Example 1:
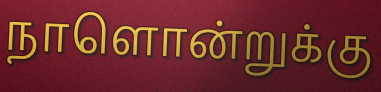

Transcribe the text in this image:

நாளொன்றுக்கு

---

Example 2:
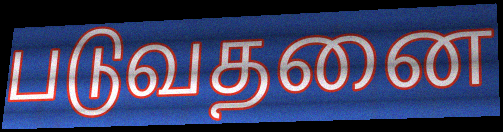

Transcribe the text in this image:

படுவதனை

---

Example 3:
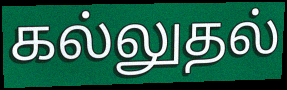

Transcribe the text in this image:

கல்லுதல்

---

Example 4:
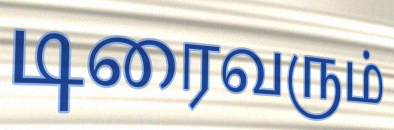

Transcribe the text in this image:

டிரைவரும்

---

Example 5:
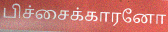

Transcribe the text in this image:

பிச்சைக்காரனோ